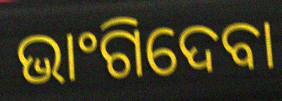
ଭାଂଗିଦେବା